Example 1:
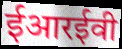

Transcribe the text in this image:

ईआरईवी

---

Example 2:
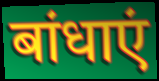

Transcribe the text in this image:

बांधाएं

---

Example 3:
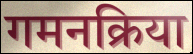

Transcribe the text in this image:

गमनक्रिया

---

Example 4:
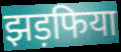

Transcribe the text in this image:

झड़फिया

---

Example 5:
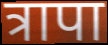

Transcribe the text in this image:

त्रापा